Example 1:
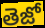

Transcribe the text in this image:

తెజో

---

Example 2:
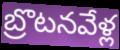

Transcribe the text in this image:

బ్రొటనవేళ్ల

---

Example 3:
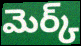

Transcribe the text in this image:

మెర్క్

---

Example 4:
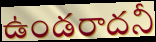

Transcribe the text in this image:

ఉండరాదనీ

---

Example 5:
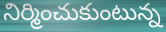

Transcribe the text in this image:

నిర్మించుకుంటున్న